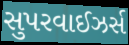
સુપરવાઈઝર્સ